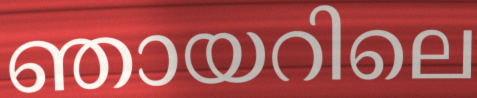
ഞായറിലെ